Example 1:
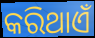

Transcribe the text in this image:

କରିଥାଏଁ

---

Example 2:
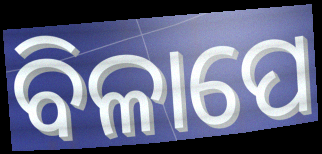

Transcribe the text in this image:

ବିଳାପେ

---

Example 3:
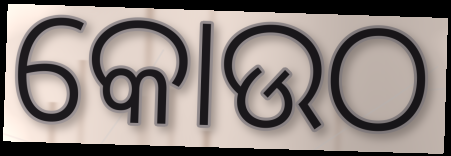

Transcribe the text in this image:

କୋଉଠ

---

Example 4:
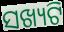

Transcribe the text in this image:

ସଖ୍ୟଟି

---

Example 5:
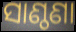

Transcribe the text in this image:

ସାଣ୍ଠଣା